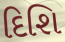
દિશિ